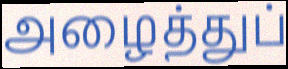
அழைத்துப்